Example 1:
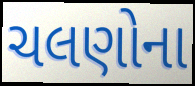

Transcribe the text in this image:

ચલણોના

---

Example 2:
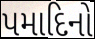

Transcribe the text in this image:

પમાદિનો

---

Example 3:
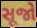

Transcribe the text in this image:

સૂજો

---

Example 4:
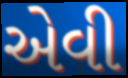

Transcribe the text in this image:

એવી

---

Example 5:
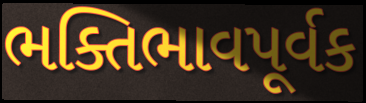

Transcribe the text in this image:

ભક્તિભાવપૂર્વક